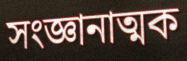
সংজ্ঞানাত্মক